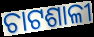
ଚାଟଶାଳୀ